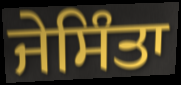
ਜੇਸਿੰਤਾ